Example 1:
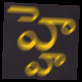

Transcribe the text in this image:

హ్హె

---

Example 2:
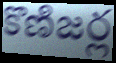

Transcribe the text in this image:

కొణిజర్ల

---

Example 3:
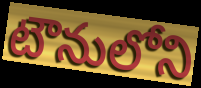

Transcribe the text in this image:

టౌనులోని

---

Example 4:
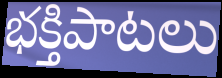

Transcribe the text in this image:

భక్తిపాటలు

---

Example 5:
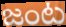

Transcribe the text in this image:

జంట